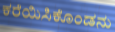
ಕರೆಯಿಸಿಕೊಂಡನು